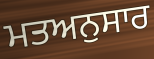
ਮਤਅਨੁਸਾਰ